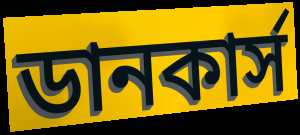
ডানকার্স